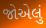
જોએલું